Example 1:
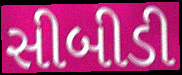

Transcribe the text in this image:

સીબીડી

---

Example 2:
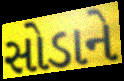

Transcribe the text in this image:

સોડાને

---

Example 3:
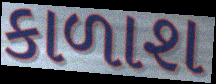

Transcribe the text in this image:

કાળાશ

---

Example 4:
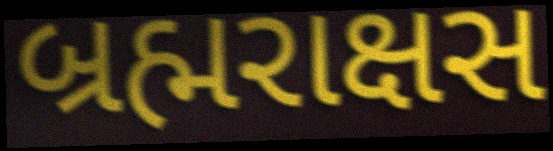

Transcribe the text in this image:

બ્રહ્મરાક્ષસ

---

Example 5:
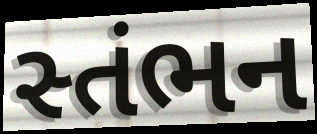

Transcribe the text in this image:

સ્તંભન